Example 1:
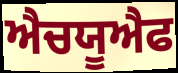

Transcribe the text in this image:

ਐਚਯੂਐਫ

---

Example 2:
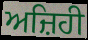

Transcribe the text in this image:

ਅਜ਼ਿਹੀ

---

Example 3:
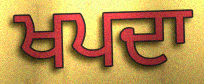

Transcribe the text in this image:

ਖਪਦਾ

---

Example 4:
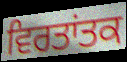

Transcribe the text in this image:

ਵਿਰਤਾਂਤਕ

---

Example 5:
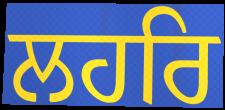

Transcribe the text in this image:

ਲਹਰਿ